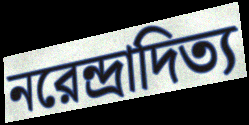
নরেন্দ্রাদিত্য